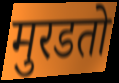
मुरडतो